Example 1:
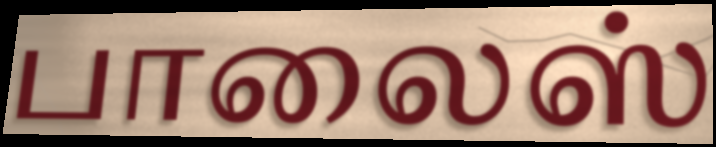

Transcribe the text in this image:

பாலைஸ்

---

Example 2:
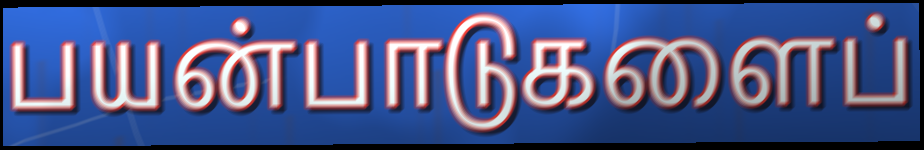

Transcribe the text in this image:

பயன்பாடுகளைப்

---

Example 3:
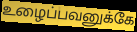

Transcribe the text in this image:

உழைப்பவனுக்கே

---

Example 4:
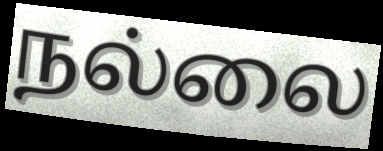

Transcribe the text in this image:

நல்லை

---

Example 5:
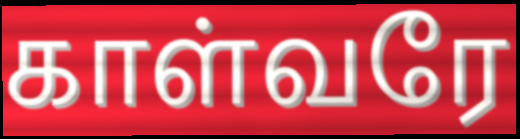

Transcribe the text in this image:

காள்வரே